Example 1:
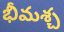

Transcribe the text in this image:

భీమశ్చ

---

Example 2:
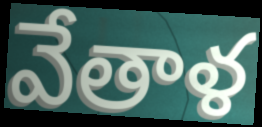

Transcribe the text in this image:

వేతాళ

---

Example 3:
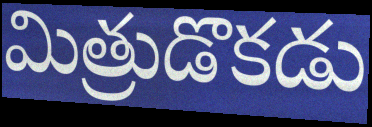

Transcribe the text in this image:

మిత్రుడొకడు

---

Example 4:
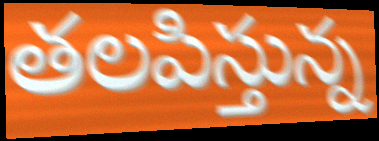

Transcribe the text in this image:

తలపిస్తున్న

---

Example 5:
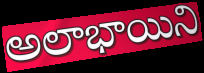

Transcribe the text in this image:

అలాభాయిని